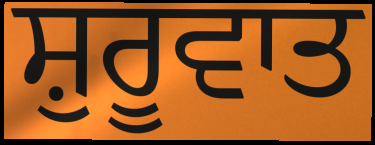
ਸ਼ੁਰੂਵਾਤ